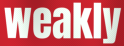
weakly